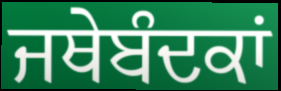
ਜਥੇਬੰਦਕਾਂ